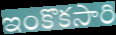
ఇంకొకసారి